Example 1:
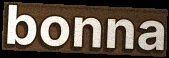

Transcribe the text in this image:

bonna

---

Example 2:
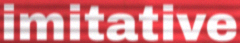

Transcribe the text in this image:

imitative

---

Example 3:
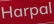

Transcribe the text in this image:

Harpal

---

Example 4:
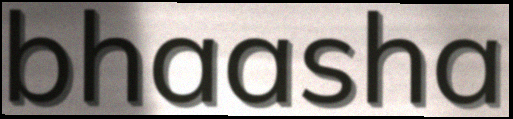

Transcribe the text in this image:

bhaasha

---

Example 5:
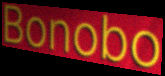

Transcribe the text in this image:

Bonobo